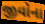
જીવોના